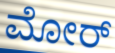
ಮೋರ್